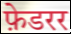
फ़ेडरर